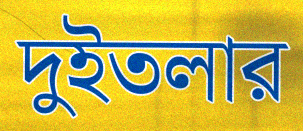
দুইতলার